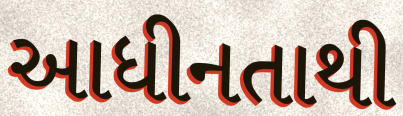
આધીનતાથી